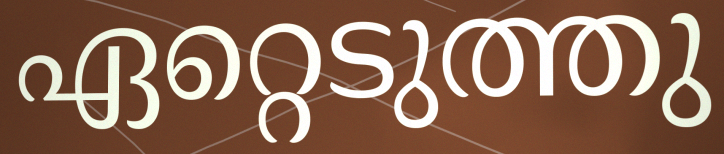
ഏറ്റെടുത്തു